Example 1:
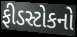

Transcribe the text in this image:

ફીડસ્ટોકનો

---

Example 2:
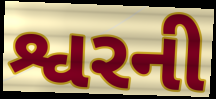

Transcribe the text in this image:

શ્વરની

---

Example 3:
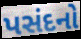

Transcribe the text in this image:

પસંદનો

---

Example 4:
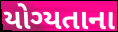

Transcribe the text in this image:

યોગ્યતાના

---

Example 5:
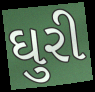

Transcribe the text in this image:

ઘુરી